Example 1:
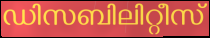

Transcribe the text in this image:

ഡിസബിലിറ്റീസ്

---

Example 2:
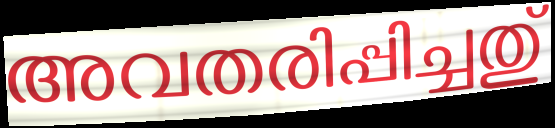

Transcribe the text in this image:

അവതരിപ്പിച്ചതു്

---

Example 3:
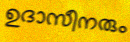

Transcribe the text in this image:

ഉദാസീനരും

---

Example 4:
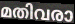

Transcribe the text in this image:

മതിവരാ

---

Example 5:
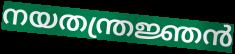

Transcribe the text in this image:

നയതന്ത്രജ്ഞൻ